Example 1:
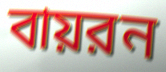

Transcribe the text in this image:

বায়রন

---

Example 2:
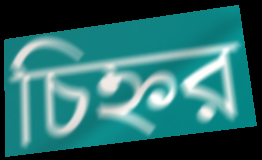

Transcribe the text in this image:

চিহ্নর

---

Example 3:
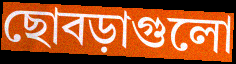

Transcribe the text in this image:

ছোবড়াগুলো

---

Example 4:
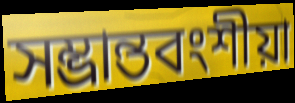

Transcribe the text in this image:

সম্ভ্রান্তবংশীয়া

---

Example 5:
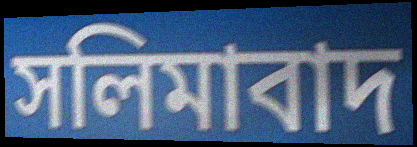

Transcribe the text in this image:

সলিমাবাদ